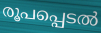
രൂപപ്പെടൽ